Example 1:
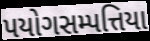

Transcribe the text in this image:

પયોગસમ્પત્તિયા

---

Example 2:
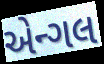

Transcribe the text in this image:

એન્ગલ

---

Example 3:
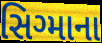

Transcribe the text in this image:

સિગ્માના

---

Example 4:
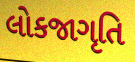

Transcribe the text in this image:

લોકજાગૃતિ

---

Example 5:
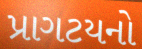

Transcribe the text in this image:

પ્રાગટયનો